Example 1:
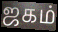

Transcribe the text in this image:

ஜகம்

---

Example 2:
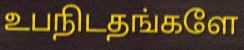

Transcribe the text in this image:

உபநிடதங்களே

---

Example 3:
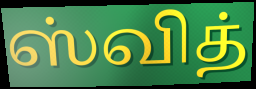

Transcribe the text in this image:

ஸ்வித்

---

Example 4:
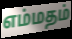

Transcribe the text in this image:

எம்மதம்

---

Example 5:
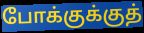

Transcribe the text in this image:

போக்குக்குத்